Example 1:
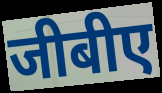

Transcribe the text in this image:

जीबीए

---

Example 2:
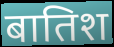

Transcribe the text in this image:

बातिश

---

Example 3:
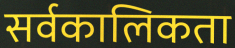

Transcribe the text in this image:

सर्वकालिकता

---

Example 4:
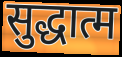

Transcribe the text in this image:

सुद्धात्म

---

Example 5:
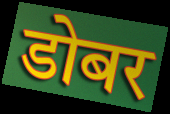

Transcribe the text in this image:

डोबर